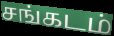
சங்கடம்